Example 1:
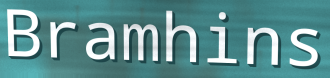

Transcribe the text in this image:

Bramhins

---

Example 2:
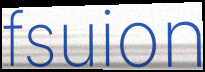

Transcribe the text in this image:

fsuion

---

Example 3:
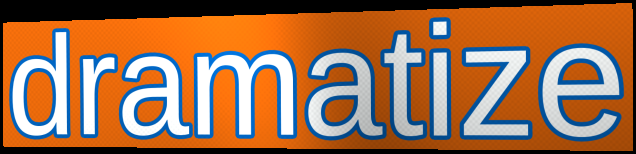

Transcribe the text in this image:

dramatize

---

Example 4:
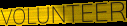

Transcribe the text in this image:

VOLUNTEER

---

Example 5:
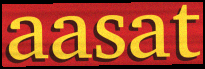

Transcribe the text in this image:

aasat